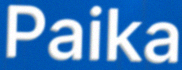
Paika